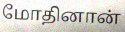
மோதினான்